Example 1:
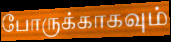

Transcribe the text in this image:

போருக்காகவும்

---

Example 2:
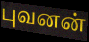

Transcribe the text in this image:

புவனன்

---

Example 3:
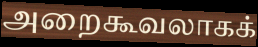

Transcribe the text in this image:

அறைகூவலாகக்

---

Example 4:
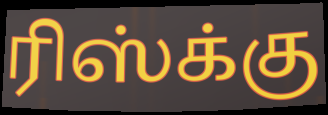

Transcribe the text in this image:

ரிஸ்க்கு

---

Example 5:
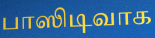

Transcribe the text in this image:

பாஸிடிவாக